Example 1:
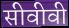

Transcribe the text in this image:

सीवीवी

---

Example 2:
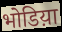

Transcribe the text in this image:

भोडिय़ा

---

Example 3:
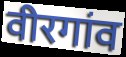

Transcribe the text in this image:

वीरगांव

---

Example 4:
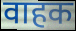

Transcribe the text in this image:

वाहक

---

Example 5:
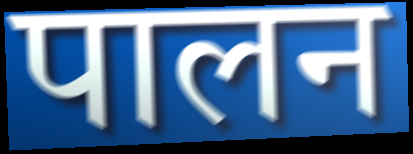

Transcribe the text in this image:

पालन